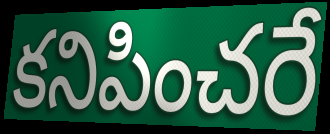
కనిపించరే